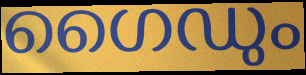
ഗൈഡും